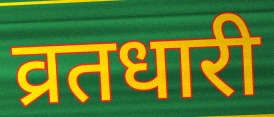
व्रतधारी